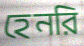
হেনরি